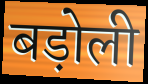
बड़ोली